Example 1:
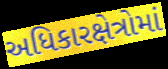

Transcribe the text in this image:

અધિકારક્ષેત્રોમાં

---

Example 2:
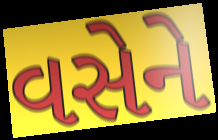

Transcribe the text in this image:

વસેને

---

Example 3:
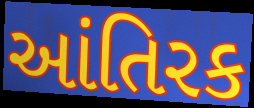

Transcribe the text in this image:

આંતિરક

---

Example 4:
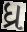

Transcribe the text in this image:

ધ્ર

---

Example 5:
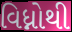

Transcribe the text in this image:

વિધ્નોથી